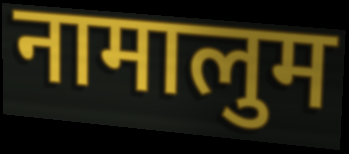
नामालुम